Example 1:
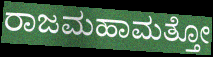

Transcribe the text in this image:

ರಾಜಮಹಾಮತ್ತೋ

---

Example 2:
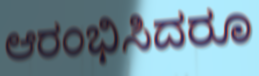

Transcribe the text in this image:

ಆರಂಭಿಸಿದರೂ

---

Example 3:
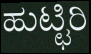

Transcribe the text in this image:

ಹುಟ್ಟಿರಿ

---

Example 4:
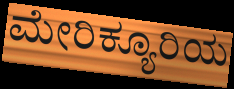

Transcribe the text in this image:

ಮೇರಿಕ್ಯೂರಿಯ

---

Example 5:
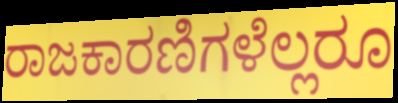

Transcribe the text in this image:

ರಾಜಕಾರಣಿಗಳೆಲ್ಲರೂ